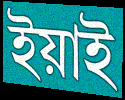
ইয়াই